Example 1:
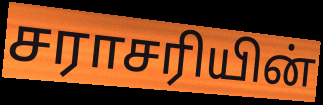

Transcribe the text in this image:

சராசரியின்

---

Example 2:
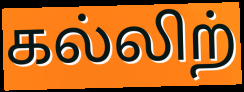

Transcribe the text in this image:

கல்லிற்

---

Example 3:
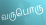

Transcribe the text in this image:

வருபொரு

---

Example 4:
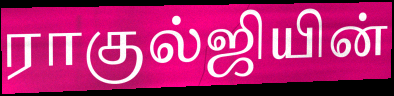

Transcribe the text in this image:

ராகுல்ஜியின்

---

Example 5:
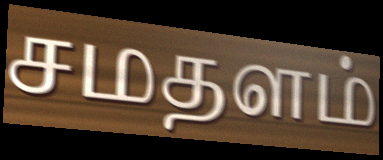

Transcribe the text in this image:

சமதளம்